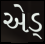
એડ્